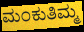
ಮಂಕುತಿಮ್ಮ